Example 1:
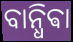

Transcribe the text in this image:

ବାନ୍ଧିଵା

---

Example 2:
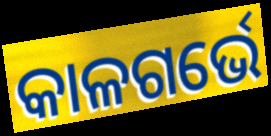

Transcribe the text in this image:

କାଳଗର୍ଭେ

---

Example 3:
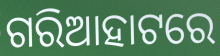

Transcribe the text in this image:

ଗରିଆହାଟରେ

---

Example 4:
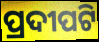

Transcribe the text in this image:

ପ୍ରଦୀପଟି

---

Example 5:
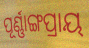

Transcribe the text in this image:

ପୂର୍ଣ୍ଣାଙ୍ଗପ୍ରାୟ